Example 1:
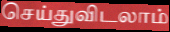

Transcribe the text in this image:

செய்துவிடலாம்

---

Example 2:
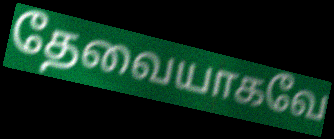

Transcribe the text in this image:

தேவையாகவே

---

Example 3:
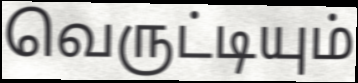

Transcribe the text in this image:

வெருட்டியும்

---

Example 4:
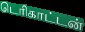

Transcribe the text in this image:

டெரிகாட்டன்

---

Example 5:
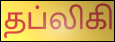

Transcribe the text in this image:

தப்லிகி